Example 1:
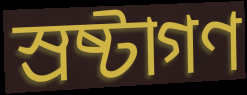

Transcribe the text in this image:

স্রষ্টাগণ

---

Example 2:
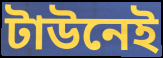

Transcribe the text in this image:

টাউনেই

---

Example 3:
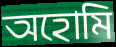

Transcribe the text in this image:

অহোমি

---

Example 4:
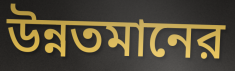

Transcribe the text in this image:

উন্নতমানের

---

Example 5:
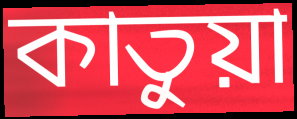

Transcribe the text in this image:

কাতুয়া